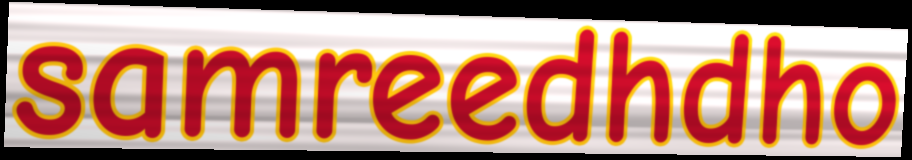
samreedhdho